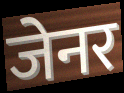
जेनर